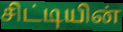
சிட்டியின்